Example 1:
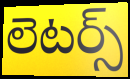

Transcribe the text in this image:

లెటర్స్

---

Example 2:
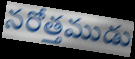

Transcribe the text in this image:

నరోత్తముడు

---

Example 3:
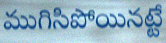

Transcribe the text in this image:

ముగిసిపోయినట్టే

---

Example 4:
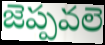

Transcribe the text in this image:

జెప్పవలె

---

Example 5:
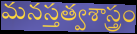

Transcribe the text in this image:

మనస్తత్వశాస్త్రం